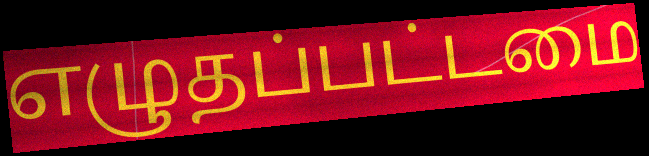
எழுதப்பட்டமை